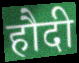
हौदी